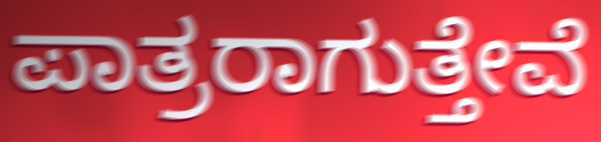
ಪಾತ್ರರಾಗುತ್ತೇವೆ